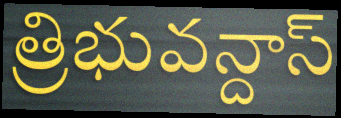
త్రిభువన్దాస్